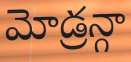
మోడ్రన్గా